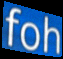
foh